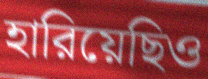
হারিয়েছিও